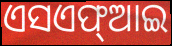
ଏସଏଫ୍ଆଇ